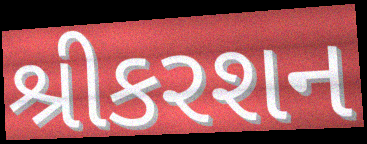
શ્રીકરશન